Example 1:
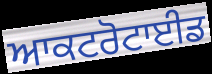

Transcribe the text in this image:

ਆਕਟਰੋਟਾਈਡ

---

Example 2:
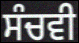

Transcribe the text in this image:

ਸੰਚਵੀ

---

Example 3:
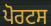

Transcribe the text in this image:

ਪੋਰਟਸ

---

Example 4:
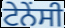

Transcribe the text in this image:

ਟੇਨੇਂਸੀ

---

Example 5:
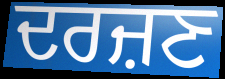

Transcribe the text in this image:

ਦਰਜ਼ਣ